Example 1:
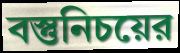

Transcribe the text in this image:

বস্তুনিচয়ের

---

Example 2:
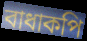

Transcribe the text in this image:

বাধাকপি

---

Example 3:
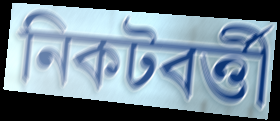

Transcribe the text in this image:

নিকটবর্ত্তী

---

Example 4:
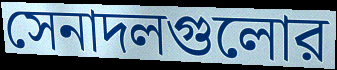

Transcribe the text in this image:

সেনাদলগুলোর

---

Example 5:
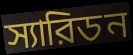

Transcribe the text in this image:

স্যারিডন